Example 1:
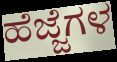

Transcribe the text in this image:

ಹೆಜ್ಜೆಗಳ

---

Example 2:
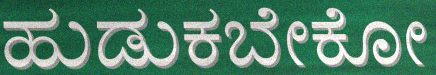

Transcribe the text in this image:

ಹುಡುಕಬೇಕೋ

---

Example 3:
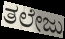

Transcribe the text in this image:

ತಲೇಜು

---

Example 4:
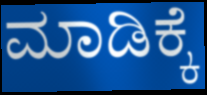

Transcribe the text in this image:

ಮಾಡಿಕ್ಕೆ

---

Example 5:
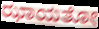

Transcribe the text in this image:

ಝಾಯತೋ